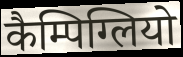
कैम्पिग्लियो